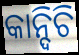
କାନ୍ଦିଚି